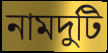
নামদুটি